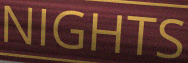
NIGHTS